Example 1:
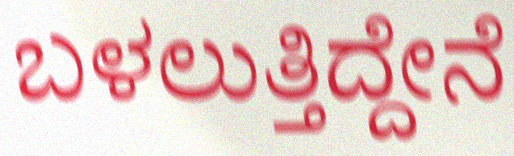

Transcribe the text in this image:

ಬಳಲುತ್ತಿದ್ದೇನೆ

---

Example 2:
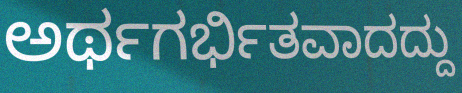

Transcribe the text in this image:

ಅರ್ಥಗರ್ಭಿತವಾದದ್ದು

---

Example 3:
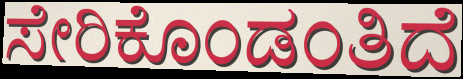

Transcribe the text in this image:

ಸೇರಿಕೊಂಡಂತಿದೆ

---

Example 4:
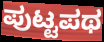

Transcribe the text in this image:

ಪುಟ್ಟಪಥ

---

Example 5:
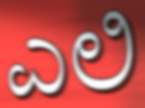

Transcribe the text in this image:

ಎಲಿ